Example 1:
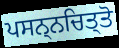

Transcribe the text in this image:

ਪਸਨ੍ਨਚਿਤ੍ਤੋ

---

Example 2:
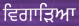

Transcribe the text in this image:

ਵਿਗਾੜਿਆ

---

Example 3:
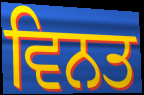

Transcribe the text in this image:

ਵਿਨਤ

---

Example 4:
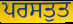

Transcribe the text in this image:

ਪਰਸਤੁਤ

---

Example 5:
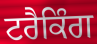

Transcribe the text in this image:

ਟਰੈਕਿੰਗ